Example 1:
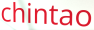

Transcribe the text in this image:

chintao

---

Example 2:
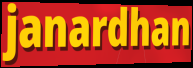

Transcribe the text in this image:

janardhan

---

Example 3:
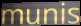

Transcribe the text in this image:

munis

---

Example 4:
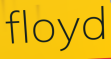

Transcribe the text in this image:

floyd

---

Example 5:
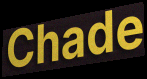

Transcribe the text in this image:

Chade